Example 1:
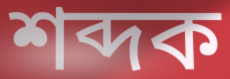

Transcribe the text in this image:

শব্দক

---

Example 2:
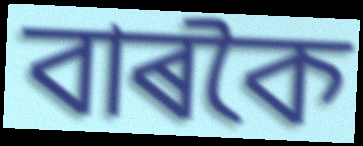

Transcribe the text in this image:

বাৰকৈ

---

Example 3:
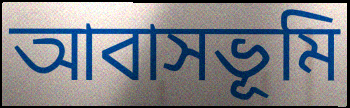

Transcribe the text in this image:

আবাসভূমি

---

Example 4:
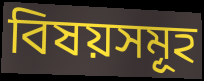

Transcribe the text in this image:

বিষয়সমূহ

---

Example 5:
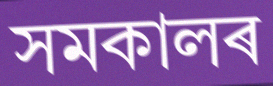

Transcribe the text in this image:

সমকালৰ